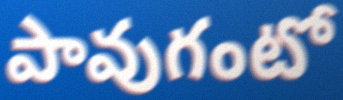
పావుగంటో